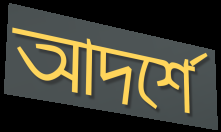
আদর্শে